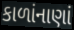
કાળાંનાણાં